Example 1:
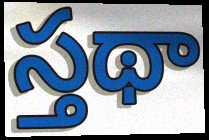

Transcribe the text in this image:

స్తథా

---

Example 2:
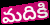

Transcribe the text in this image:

మదికి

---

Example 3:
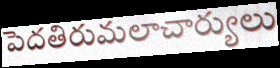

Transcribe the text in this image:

పెదతిరుమలాచార్యులు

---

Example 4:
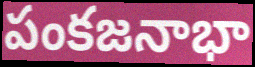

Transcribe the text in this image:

పంకజనాభా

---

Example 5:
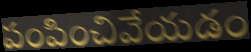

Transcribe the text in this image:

పంపించివేయడం